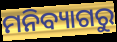
ମନିବ୍ୟାଗରୁ